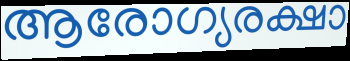
ആരോഗ്യരക്ഷാ